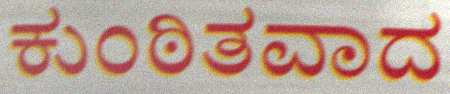
ಕುಂಠಿತವಾದ